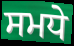
ਸਮਧੇ